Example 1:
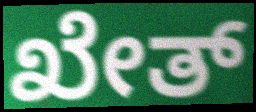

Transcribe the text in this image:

ಖೇತ್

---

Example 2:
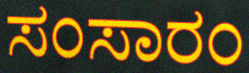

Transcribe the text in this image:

ಸಂಸಾರಂ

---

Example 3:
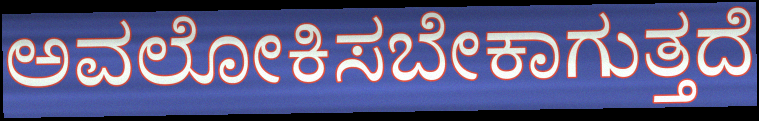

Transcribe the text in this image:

ಅವಲೋಕಿಸಬೇಕಾಗುತ್ತದೆ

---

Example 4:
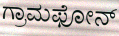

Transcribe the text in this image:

ಗ್ರಾಮಫೋನ್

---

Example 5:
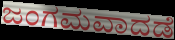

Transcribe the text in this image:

ಜಂಗಮವಾದಡೆ